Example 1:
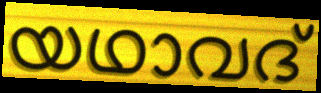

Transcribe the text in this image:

യഥാവദ്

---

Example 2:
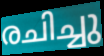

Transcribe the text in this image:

രചിച്ചു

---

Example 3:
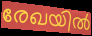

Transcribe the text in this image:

രേഖയിൽ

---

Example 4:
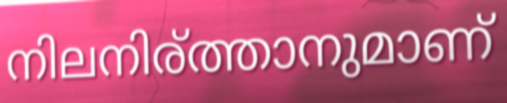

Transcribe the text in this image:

നിലനിര്ത്താനുമാണ്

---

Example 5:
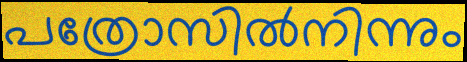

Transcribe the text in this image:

പത്രോസിൽനിന്നും